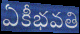
ఏకీభవతి